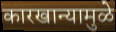
कारखान्यामुळे